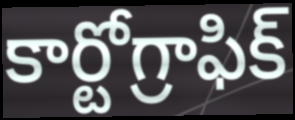
కార్టోగ్రాఫిక్